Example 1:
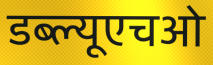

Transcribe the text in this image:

डब्ल्यूएचओ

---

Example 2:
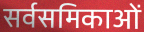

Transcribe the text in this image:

सर्वसमिकाओं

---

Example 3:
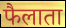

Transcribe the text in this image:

फैलाता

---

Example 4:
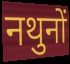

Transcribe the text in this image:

नथुनों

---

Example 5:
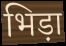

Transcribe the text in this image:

भिड़ा